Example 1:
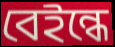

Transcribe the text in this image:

বেইন্ধে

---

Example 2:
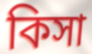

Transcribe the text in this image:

কিসা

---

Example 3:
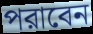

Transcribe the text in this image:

পরাবেন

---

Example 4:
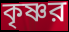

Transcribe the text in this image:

কৃষ্ণর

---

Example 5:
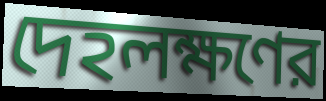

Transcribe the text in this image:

দেহলক্ষণের